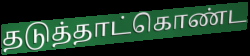
தடுத்தாட்கொண்ட